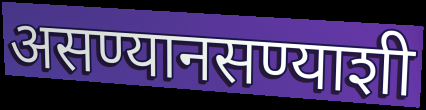
असण्यानसण्याशी